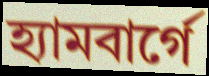
হ্যামবার্গে